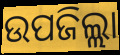
ଉପଜିଲ୍ଲା